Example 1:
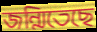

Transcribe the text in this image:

জন্মিতেছে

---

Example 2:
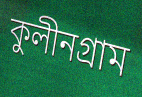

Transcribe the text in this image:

কুলীনগ্রাম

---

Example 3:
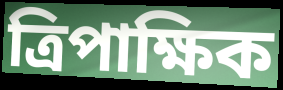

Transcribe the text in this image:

ত্রিপাক্ষিক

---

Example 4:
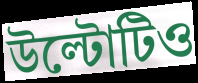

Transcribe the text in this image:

উল্টোটিও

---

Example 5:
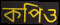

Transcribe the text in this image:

কপিও